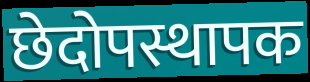
छेदोपस्थापक